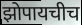
झोपायचीच